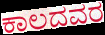
ಕಾಲದವರ